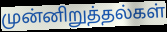
முன்னிறுத்தல்கள்